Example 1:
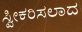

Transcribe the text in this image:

ಸ್ವೀಕರಿಸಲಾದ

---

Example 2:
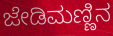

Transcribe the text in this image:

ಜೇಡಿಮಣ್ಣಿನ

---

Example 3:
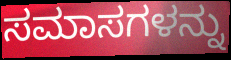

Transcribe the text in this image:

ಸಮಾಸಗಳನ್ನು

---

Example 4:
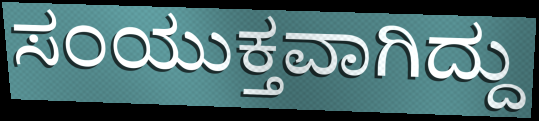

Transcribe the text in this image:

ಸಂಯುಕ್ತವಾಗಿದ್ದು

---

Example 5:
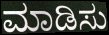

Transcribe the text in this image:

ಮಾಡಿಸು